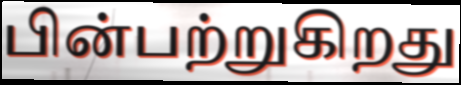
பின்பற்றுகிறது